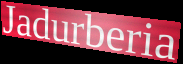
Jadurberia